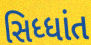
સિધ્ધાંત